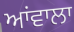
ਆਂਵਾਲਾ